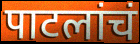
पाटलांचं